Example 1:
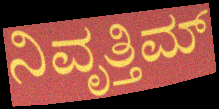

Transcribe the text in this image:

ನಿವೃತ್ತಿಮ್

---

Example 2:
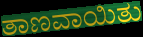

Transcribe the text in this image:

ತಾಣವಾಯಿತು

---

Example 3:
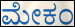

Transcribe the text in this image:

ಮೇಕಂ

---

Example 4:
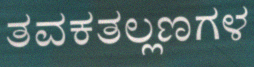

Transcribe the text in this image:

ತವಕತಲ್ಲಣಗಳ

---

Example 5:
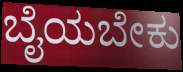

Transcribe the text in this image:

ಬೈಯಬೇಕು